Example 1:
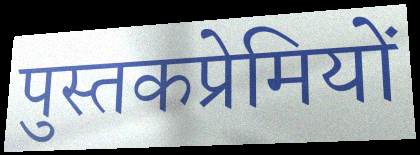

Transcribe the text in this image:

पुस्तकप्रेमियों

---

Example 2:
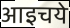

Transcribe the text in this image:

आइचये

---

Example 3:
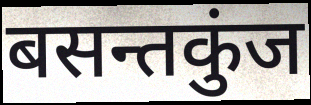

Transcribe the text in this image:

बसन्तकुंज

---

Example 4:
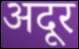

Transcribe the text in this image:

अदूर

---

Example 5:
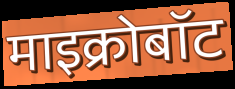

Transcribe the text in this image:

माइक्रोबॉट